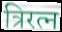
त्रिरत्न